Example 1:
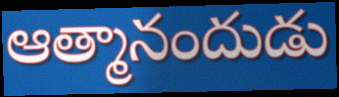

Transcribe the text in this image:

ఆత్మానందుడు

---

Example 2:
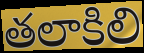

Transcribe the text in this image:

తలాకిలి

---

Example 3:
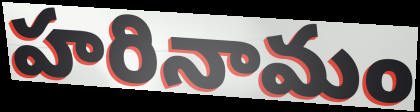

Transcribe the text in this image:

హరినామం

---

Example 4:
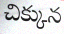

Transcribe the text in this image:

చిక్కున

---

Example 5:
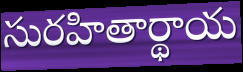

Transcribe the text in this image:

సురహితార్థాయ